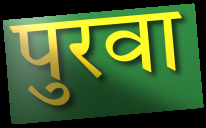
पुरवा